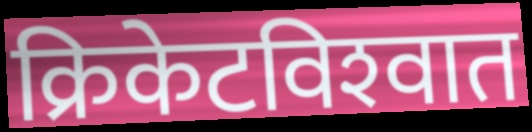
क्रिकेटविश्‍वात